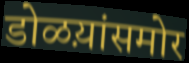
डोळय़ांसमोर